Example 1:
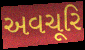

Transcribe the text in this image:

અવચૂરિ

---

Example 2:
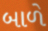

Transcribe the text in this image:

બાળે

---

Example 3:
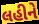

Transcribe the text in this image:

લહીને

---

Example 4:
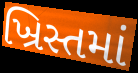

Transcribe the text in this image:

ખ્રિસ્તમાં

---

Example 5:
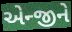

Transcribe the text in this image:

એન્જીને